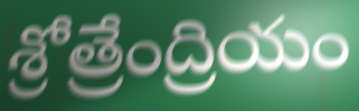
శ్రోత్రేంద్రియం